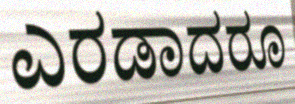
ಎರಡಾದರೂ